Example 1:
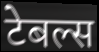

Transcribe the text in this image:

टेबल्स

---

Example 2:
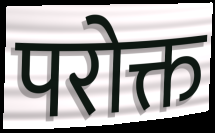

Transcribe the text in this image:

परोक्त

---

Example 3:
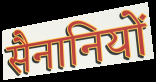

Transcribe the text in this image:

सैनानियों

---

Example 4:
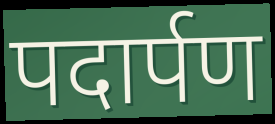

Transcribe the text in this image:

पदार्पण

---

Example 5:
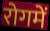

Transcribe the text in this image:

रोगमें